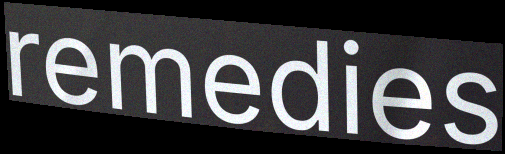
remedies